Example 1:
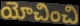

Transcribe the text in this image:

యోచించి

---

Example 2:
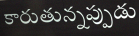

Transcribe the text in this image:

కారుతున్నప్పుడు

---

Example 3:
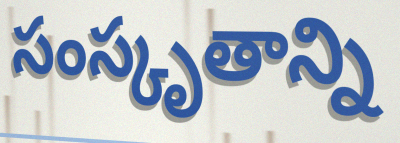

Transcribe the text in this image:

సంస్కృతాన్ని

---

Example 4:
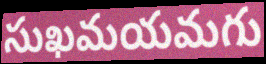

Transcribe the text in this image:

సుఖమయమగు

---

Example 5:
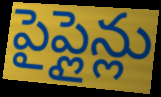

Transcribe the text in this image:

పైప్లైన్లు